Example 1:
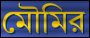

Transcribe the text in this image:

মৌমির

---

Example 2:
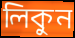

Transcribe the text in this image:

লিকুন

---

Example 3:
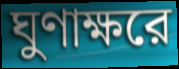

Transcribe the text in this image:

ঘুণাক্ষরে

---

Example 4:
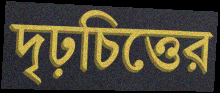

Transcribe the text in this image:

দৃঢ়চিত্তের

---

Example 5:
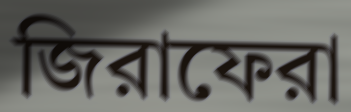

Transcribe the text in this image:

জিরাফেরা